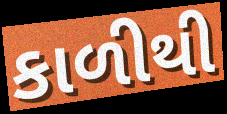
કાળીથી